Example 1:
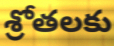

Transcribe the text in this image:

శ్రోతలకు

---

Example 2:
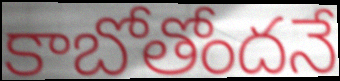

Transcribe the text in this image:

కాబోతోందనే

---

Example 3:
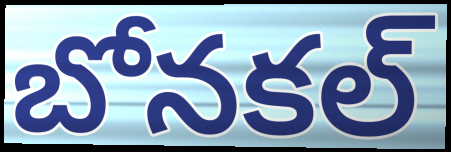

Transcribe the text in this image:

బోనకల్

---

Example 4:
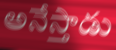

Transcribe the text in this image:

అనేస్తాడు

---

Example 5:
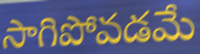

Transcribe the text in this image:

సాగిపోవడమే